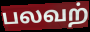
பலவற்